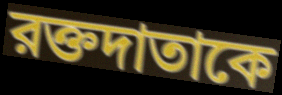
রক্তদাতাকে